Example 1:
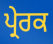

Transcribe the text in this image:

ਪ੍ਰੇਰਕ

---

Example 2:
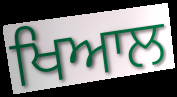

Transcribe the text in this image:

ਖਿਆਲ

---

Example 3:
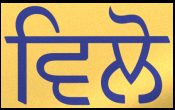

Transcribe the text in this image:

ਵਿਲੋ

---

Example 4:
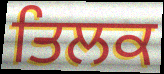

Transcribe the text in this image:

ਤਿਲਕ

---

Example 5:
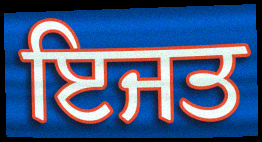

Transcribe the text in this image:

ਇਜਤ